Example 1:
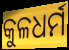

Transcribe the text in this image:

କୁଳଧର୍ମ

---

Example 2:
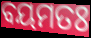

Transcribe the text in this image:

ବୟମତଃ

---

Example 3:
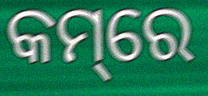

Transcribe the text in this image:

କମ୍‌ରେ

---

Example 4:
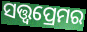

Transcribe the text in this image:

ସତ୍ତ୍ୱପ୍ରେମର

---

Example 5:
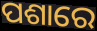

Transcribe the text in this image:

ପଶାରେ